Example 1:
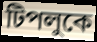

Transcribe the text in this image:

টিপলুকে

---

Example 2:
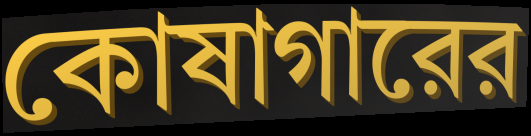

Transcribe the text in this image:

কোষাগারের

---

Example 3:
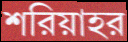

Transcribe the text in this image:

শরিয়াহর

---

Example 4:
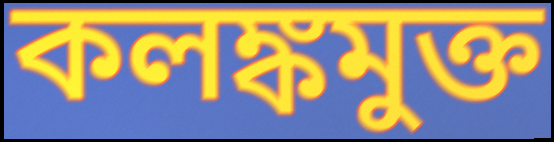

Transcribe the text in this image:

কলঙ্কমুক্ত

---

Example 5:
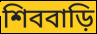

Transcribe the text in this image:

শিববাড়ি